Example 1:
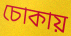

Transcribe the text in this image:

চোকায়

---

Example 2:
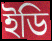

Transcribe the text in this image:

ইডি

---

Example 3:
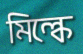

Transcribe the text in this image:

মিল্কে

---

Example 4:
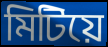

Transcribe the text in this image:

মিটিয়ে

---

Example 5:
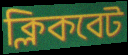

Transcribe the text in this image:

ক্লিকবেট